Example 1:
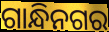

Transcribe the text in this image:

ଗାନ୍ଧିନଗର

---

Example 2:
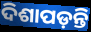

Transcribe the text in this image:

ଦିଶାପଡ଼ନ୍ତି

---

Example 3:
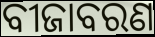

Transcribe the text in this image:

ବୀଜାବରଣ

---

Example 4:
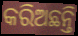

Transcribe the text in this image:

କରିଅଛନ୍ତି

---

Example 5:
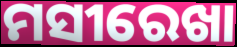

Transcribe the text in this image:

ମସୀରେଖା